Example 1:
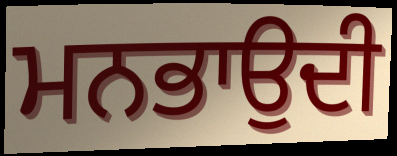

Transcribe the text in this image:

ਮਨਭਾਉਦੀ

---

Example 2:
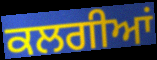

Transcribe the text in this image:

ਕਲਗੀਆਂ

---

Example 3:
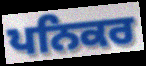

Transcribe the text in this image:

ਪਨਿਕਰ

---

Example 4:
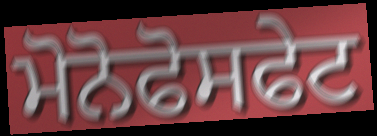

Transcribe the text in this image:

ਮੋਨੋਫੋਸਫੇਟ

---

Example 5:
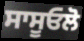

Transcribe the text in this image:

ਸਾਸੂਓਲੋ